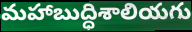
మహాబుద్ధిశాలియగు